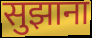
सुझाना